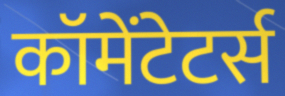
कॉमेंटेटर्स